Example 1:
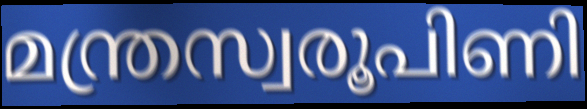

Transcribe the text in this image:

മന്ത്രസ്വരൂപിണി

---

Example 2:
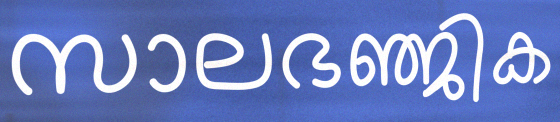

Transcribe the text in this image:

സാലഭഞ്ജിക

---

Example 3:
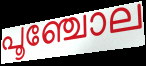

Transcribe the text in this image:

പൂഞ്ചോല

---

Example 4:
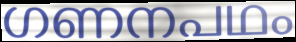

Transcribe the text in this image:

ഗണനപഥം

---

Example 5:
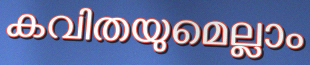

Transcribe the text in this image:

കവിതയുമെല്ലാം